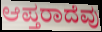
ಆಪ್ತರಾದೆವು